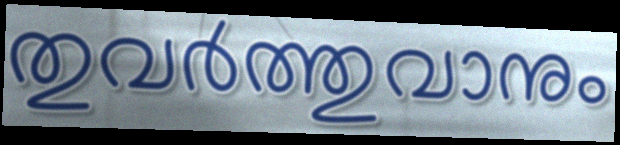
തുവർത്തുവാനും